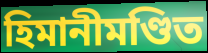
হিমানীমণ্ডিত